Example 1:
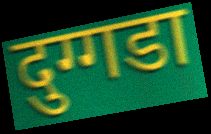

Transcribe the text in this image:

दुग्गडा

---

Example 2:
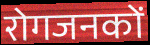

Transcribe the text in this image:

रोगजनकों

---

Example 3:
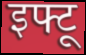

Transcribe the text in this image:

इफ्टू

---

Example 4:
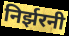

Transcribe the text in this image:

निर्झरनी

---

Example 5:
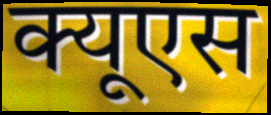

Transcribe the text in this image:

क्यूएस